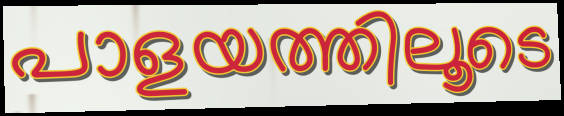
പാളയത്തിലൂടെ